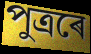
পুত্ৰৰে